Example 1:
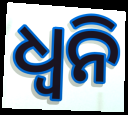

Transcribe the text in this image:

ଧ୍ବନି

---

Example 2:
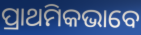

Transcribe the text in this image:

ପ୍ରାଥମିକଭାବେ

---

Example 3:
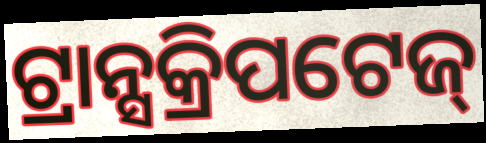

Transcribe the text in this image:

ଟ୍ରାନ୍ସକ୍ରିପଟେଜ୍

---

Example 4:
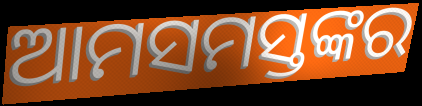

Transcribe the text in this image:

ଆମସମସ୍ତଙ୍କର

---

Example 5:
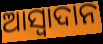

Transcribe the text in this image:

ଆସ୍ୱାଦାନ